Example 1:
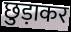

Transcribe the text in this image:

छुड़ाकर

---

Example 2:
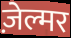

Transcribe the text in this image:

ज़ेल्मर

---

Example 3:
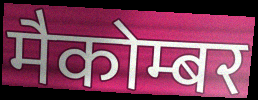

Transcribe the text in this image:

मैकोम्बर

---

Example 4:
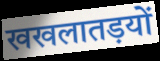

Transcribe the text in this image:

खखलातड़यों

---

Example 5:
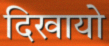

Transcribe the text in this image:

दिखायो